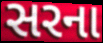
સરના